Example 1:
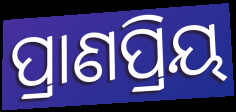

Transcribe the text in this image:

ପ୍ରାଣପ୍ରିୟ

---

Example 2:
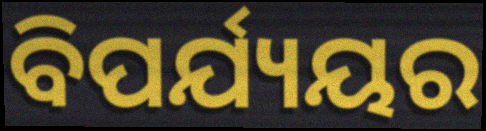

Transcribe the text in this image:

ବିପର୍ଯ୍ୟୟର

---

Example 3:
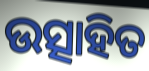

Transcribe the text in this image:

ଉତ୍ସାହିତ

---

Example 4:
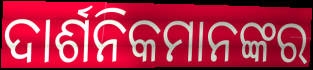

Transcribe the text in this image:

ଦାର୍ଶନିକମାନଙ୍କର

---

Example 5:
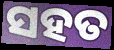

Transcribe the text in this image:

ସହତ